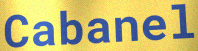
Cabanel